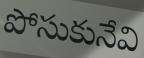
పోసుకునేవి